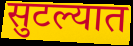
सुटल्यात